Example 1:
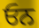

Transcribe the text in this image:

ਓਨ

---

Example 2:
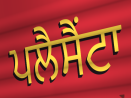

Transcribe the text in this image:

ਪਲੈਸੈਂਟਾ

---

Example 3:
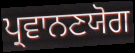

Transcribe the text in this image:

ਪ੍ਰਵਾਨਣਯੋਗ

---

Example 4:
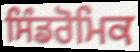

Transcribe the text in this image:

ਸਿੰਡਰੋਮਿਕ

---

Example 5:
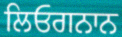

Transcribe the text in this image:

ਲਿਓਗਨਾਨ